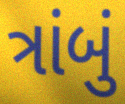
ત્રાંબું